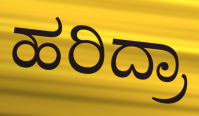
ಹರಿದ್ರಾ